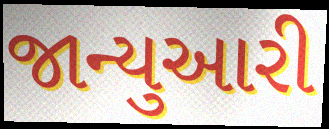
જાન્યુઆરી